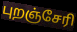
புறஞ்சேரி